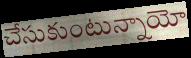
చేసుకుంటున్నాయో